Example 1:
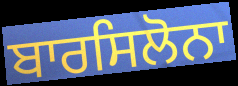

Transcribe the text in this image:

ਬਾਰਸਿਲੋਨਾ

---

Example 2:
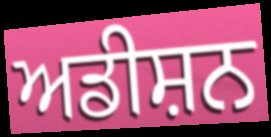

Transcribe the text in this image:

ਅਡੀਸ਼ਨ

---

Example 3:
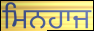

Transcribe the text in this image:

ਮਿਨਹਾਜ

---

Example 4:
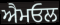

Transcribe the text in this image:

ਐਮਓਲ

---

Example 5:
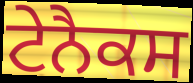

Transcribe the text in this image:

ਟੇਨੈਕਸ